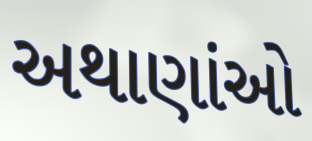
અથાણાંઓ